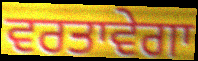
ਵਰਤਾਵੇਗਾ